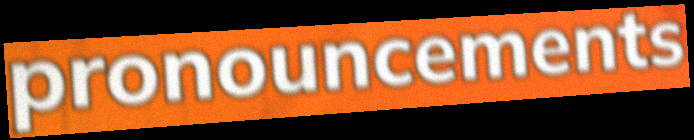
pronouncements